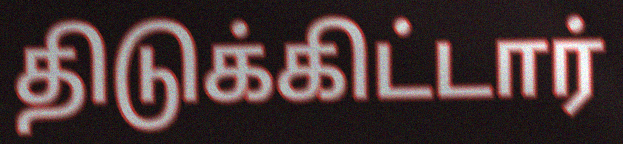
திடுக்கிட்டார்